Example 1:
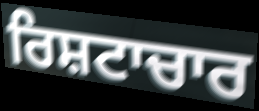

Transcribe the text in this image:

ਰਿਸ਼ਟਾਚਾਰ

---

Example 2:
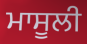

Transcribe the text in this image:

ਮਾਸੂਲੀ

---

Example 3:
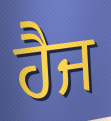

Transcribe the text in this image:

ਹੈਜ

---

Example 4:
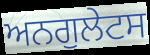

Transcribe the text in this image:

ਅਨਗੁਲੇਟਸ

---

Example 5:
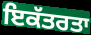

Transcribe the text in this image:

ਇਕੱਤਰਤਾ